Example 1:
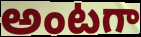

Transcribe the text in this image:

అంటగా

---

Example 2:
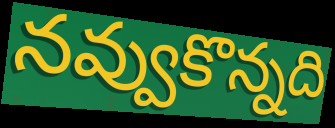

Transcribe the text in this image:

నవ్వుకొన్నది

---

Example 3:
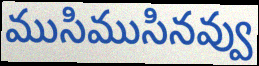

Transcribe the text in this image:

ముసిముసినవ్వు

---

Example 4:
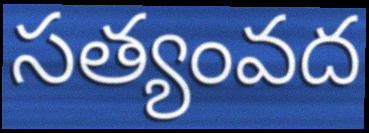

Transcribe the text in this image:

సత్యంవద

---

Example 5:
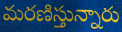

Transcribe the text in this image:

మరణిస్తున్నారు